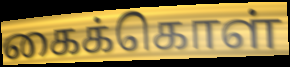
கைக்கொள்